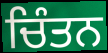
ਚਿੰਤਨ